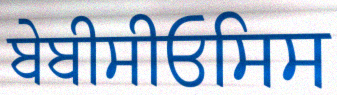
ਬੇਬੀਸੀਓਸਿਸ